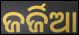
ଜର୍ଜିଆ